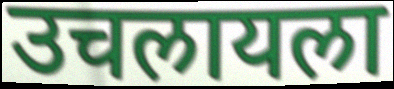
उचलायला